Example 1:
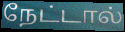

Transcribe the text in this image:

நேட்டால்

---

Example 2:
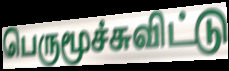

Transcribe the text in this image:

பெருமூச்சுவிட்டு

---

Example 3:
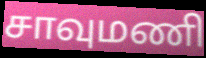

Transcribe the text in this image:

சாவுமணி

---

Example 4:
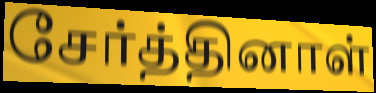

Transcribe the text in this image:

சேர்த்தினாள்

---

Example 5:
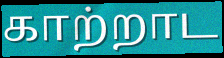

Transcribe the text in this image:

காற்றாட